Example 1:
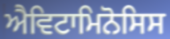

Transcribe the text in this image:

ਐਵਿਟਾਮਿਨੋਸਿਸ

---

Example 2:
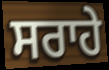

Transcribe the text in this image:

ਸਰਾਹੇ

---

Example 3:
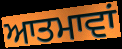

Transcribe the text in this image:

ਆਤਮਾਵਾਂ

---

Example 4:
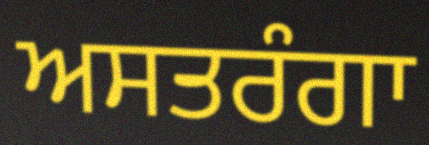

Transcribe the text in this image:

ਅਸਤਰੰਗਾ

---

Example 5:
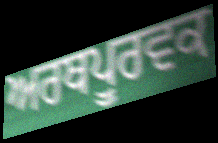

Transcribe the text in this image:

ਅਰਥਪੂਰਵਕ